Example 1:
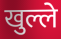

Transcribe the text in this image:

खुल्ले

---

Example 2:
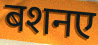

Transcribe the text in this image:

बशनए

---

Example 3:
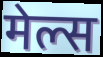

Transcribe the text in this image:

मेल्स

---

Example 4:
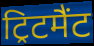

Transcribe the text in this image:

ट्रिटमैंट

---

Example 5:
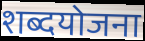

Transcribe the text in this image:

शब्दयोजना